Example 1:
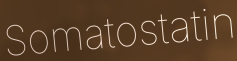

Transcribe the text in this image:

Somatostatin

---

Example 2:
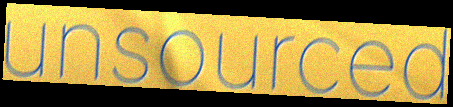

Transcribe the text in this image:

unsourced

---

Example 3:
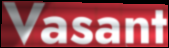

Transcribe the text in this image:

Vasant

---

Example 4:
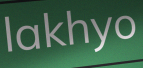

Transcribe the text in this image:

lakhyo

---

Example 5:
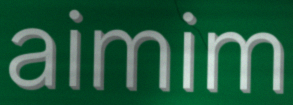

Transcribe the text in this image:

aimim